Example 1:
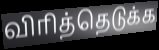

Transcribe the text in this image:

விரித்தெடுக்க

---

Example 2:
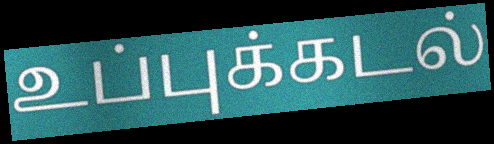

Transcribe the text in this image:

உப்புக்கடல்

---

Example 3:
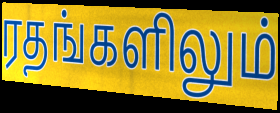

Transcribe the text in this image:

ரதங்களிலும்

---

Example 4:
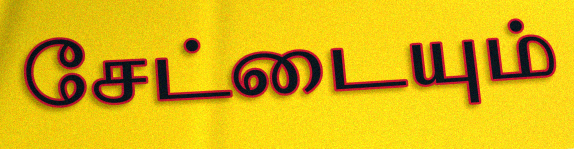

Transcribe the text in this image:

சேட்டையும்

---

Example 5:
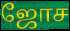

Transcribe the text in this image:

ஜோச